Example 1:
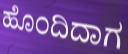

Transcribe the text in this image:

ಹೊಂದಿದಾಗ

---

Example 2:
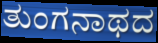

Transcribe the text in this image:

ತುಂಗನಾಥದ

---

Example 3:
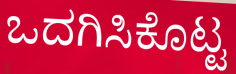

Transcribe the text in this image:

ಒದಗಿಸಿಕೊಟ್ಟ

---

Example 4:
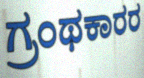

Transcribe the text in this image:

ಗ್ರಂಥಕಾರರ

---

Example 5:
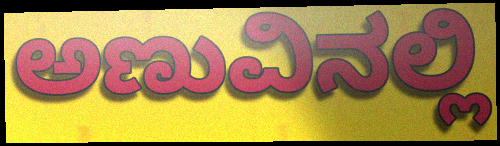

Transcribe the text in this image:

ಅಣುವಿನಲ್ಲಿ